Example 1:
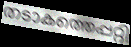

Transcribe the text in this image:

തടാകത്തെപ്പറ്റി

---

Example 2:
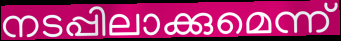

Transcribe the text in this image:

നടപ്പിലാക്കുമെന്ന്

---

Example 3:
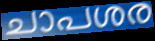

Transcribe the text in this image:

ചാപശര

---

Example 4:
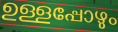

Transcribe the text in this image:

ഉള്ളപ്പോഴും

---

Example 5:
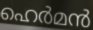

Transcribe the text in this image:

ഹെർമൻ